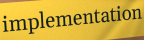
implementation